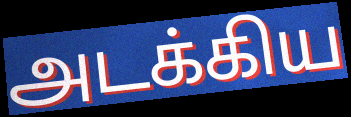
அடக்கிய